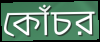
কোঁচর